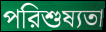
পরিশুষ্যতা